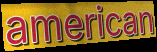
american